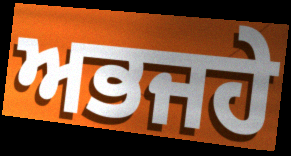
ਅਭਜਹੇ